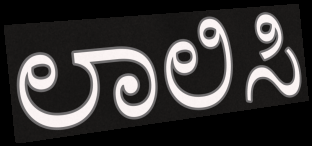
ಲಾಲಿಸಿ